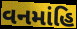
વનમાંહિ